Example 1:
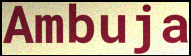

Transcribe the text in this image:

Ambuja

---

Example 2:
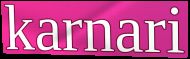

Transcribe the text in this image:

karnari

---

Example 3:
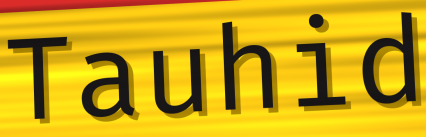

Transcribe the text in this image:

Tauhid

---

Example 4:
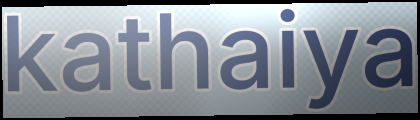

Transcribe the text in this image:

kathaiya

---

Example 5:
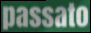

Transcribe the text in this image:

passato